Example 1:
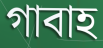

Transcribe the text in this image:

গাবাহ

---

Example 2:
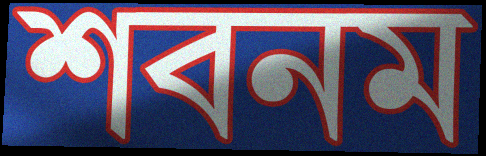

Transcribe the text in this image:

শবনম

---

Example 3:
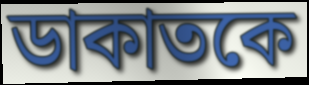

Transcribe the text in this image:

ডাকাতকে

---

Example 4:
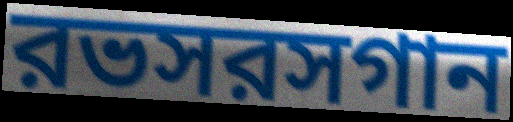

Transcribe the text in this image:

রভসরসগান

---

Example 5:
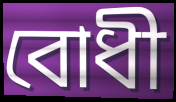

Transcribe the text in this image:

বোধী